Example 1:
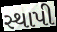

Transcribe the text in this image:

સ્થાપી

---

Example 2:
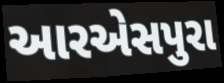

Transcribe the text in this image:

આરએસપુરા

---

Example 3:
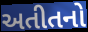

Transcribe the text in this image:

અતીતનો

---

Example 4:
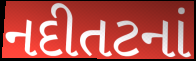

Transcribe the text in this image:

નદીતટનાં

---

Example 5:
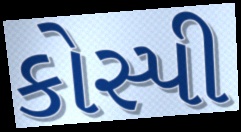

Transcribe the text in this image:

કોસ્પી